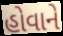
હોવાને